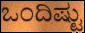
ಒಂದಿಷ್ಟು